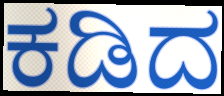
ಕಡಿದ